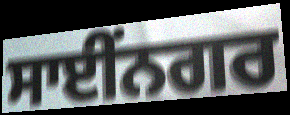
ਸਾਈਂਨਗਰ